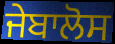
ਜੇਬਾਲੋਸ